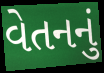
વેતનનું